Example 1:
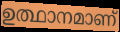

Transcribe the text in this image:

ഉത്ഥാനമാണ്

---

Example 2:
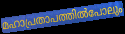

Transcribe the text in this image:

മഹാപ്രതാപത്തിൽപോലും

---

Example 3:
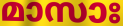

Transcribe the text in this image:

മാസാഃ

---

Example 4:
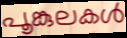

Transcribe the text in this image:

പൂങ്കുലകൾ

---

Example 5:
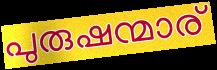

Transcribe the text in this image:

പുരുഷന്മാര്